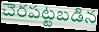
చెరపట్టబడిన